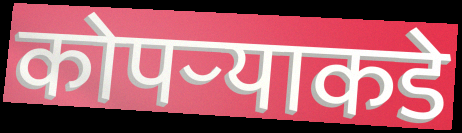
कोपऱ्याकडे